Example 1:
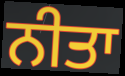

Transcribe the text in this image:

ਨੀਤਾ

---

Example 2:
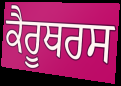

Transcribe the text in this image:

ਕੈਰੂਥਰਸ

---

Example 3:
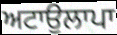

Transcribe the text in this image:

ਅਟਾਉਲਾਪਾ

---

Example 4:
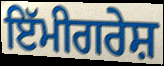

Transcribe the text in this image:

ਇੱਮੀਗਰੇਸ਼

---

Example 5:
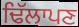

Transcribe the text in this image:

ਢਿੱਲਾਪਣ